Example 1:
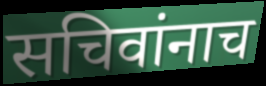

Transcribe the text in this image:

सचिवांनाच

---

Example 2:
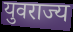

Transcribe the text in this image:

युवराज्य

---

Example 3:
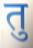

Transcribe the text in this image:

तु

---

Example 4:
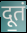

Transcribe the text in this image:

दू॒तं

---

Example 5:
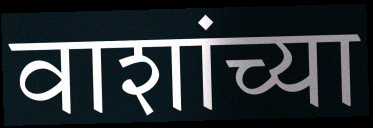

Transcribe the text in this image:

वाशांच्या